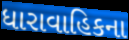
ધારાવાહિકના